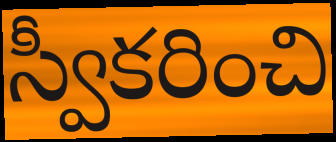
స్వీకరించి